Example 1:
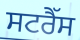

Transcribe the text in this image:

ਸਟਰੈੱਸ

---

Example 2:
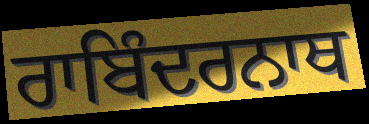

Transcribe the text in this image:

ਰਾਬਿੰਦਰਨਾਥ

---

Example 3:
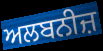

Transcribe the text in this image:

ਅਲਬਨੀਜ਼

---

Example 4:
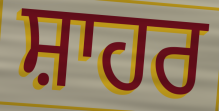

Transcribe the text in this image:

ਸ਼ਾਹਰ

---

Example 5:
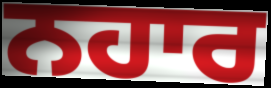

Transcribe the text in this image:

ਨਹਾਰ